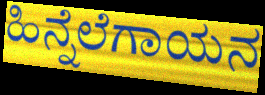
ಹಿನ್ನೆಲೆಗಾಯನ